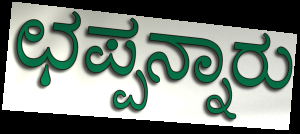
ಛಪ್ಪನ್ನಾರು